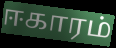
ஈகாரம்